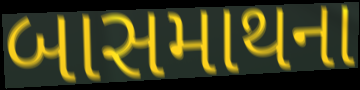
બાસમાથના